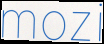
mozi